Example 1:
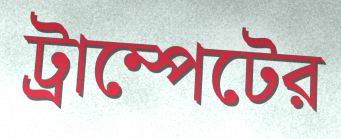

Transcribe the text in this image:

ট্রাম্পেটের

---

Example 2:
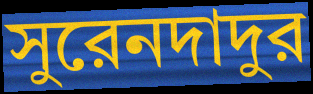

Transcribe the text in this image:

সুরেনদাদুর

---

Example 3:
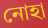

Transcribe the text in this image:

নোহা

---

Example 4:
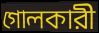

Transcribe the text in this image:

গোলকারী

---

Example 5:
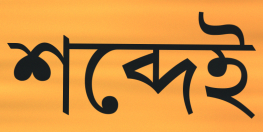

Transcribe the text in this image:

শব্দেই